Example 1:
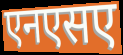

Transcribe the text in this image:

एनएसए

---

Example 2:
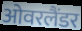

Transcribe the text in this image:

ओवरलैंडर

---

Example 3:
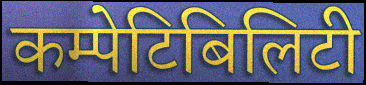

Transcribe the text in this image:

कम्पेटिबिलिटी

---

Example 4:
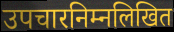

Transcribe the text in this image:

उपचारनिम्नलिखित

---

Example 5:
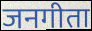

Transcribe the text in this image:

जनगीता